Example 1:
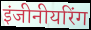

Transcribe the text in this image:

इंजीनीयरिंग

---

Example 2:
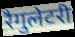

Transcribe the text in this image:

रैगुलेटरी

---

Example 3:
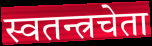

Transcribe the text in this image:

स्वतन्त्रचेता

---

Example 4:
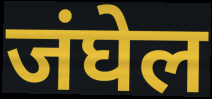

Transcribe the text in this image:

जंघेल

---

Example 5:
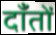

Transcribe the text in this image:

दाँतों